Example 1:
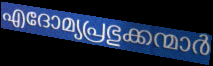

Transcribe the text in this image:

എദോമ്യപ്രഭുക്കന്മാർ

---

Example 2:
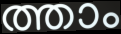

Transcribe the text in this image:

ത്താം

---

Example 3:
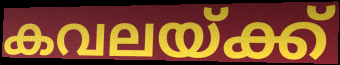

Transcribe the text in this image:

കവലയ്ക്ക്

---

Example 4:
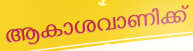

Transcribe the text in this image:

ആകാശവാണിക്ക്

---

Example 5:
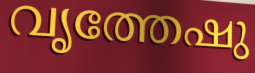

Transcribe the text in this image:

വൃത്തേഷു